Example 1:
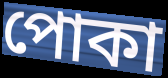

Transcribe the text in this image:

পোকা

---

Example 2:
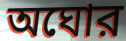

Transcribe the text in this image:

অঘোর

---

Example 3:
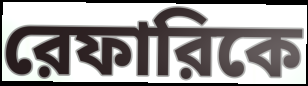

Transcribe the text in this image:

রেফারিকে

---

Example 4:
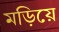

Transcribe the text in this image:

মড়িয়ে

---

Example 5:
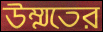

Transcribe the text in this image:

উম্মতের